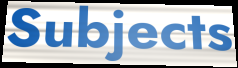
Subjects